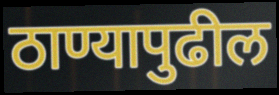
ठाण्यापुढील